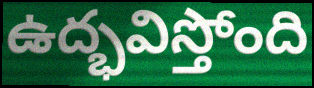
ఉద్భవిస్తోంది